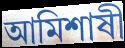
আমিশাষী